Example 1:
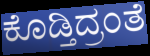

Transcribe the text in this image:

ಕೊಡ್ತಿದ್ರಂತೆ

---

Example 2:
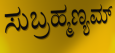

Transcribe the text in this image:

ಸುಬ್ರಹ್ಮಣ್ಯಮ್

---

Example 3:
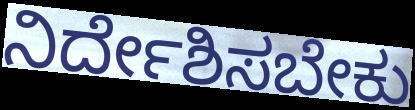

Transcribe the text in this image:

ನಿರ್ದೇಶಿಸಬೇಕು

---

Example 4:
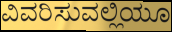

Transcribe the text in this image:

ವಿವರಿಸುವಲ್ಲಿಯೂ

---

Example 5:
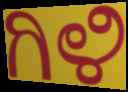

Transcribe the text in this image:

ಗಿಳಿ